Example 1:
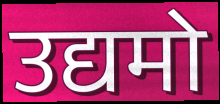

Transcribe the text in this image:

उद्यमो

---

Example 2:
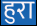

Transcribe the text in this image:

हुरा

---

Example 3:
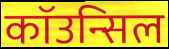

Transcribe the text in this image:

कॉउन्सिल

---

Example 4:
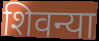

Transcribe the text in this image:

शिवन्या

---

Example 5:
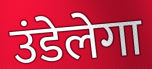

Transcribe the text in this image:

उंडेलेगा